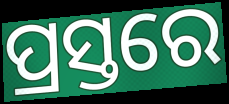
ପ୍ରସ୍ତରେ